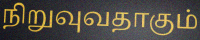
நிறுவுவதாகும்